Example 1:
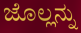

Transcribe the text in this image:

ಜೊಲ್ಲನ್ನು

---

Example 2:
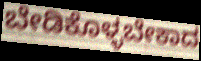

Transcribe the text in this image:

ಬೇಡಿಕೊಳ್ಳಬೇಕಾದ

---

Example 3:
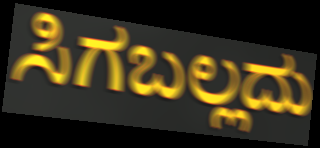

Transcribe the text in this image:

ಸಿಗಬಲ್ಲದು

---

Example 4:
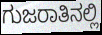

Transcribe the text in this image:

ಗುಜರಾತಿನಲ್ಲಿ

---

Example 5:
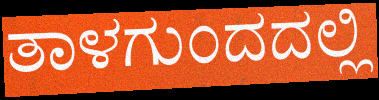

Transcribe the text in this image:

ತಾಳಗುಂದದಲ್ಲಿ